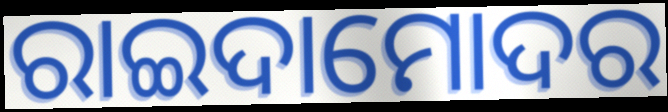
ରାଇଦାମୋଦର